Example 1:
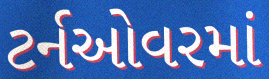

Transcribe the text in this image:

ટર્નઓવરમાં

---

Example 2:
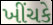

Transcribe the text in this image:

ખીંચકે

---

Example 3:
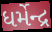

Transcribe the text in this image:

ધર્મેન્દ્ર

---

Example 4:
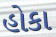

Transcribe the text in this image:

હોકા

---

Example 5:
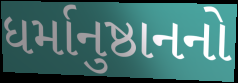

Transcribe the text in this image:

ધર્માનુષ્ઠાનનો